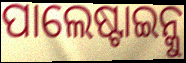
ପାଲେଷ୍ଟାଇନ୍କୁ